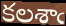
కలశాఁ